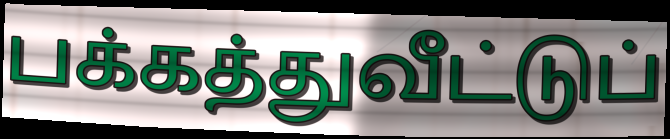
பக்கத்துவீட்டுப்